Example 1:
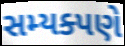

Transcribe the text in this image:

સમ્યક્પણે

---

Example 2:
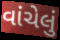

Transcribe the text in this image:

વાંચેલું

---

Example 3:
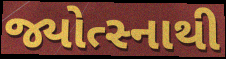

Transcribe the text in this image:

જ્યોત્સ્નાથી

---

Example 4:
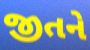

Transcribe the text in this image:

જીતને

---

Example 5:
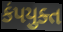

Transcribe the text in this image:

કંપયુક્ત